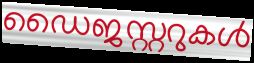
ഡൈജസ്റ്ററുകൾ